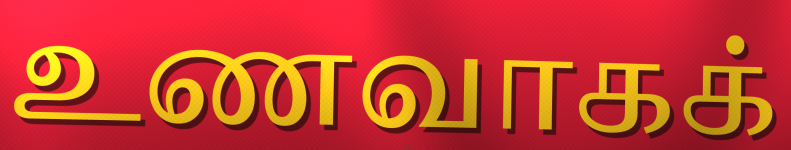
உணவாகக்